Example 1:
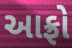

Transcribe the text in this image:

આફ્રો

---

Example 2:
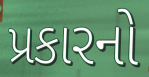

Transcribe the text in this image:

પ્રકારનો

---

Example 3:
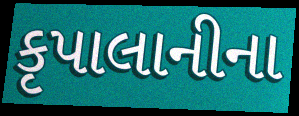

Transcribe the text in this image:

કૃપાલાનીના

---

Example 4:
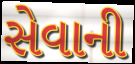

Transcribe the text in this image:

સેવાની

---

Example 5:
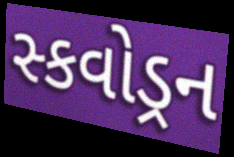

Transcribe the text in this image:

સ્કવોડ્રન